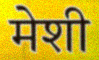
मेशी